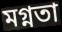
মগ্নতা